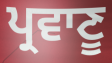
ਪ੍ਰਵਾਣੂ